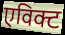
एविक्ट